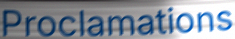
Proclamations